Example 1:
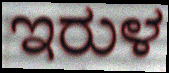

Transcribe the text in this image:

ಇರುಳ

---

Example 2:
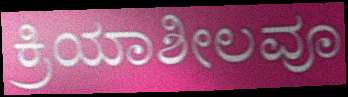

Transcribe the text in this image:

ಕ್ರಿಯಾಶೀಲವೂ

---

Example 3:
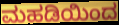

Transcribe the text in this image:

ಮಹಡಿಯಿಂದ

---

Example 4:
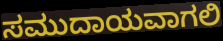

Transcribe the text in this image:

ಸಮುದಾಯವಾಗಲಿ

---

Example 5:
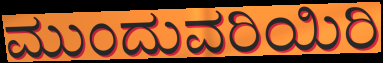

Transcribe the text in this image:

ಮುಂದುವರಿಯಿರಿ